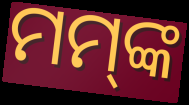
ମମ୍‍ଙ୍କ